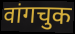
वांगचुक